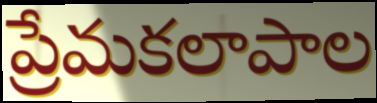
ప్రేమకలాపాల